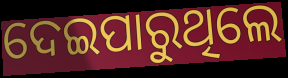
ଦେଇପାରୁଥିଲେ